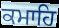
ਕਮਾਹਿ